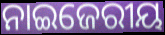
ନାଇଜେରୀୟ